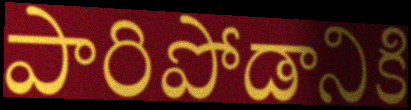
పారిపోడానికి